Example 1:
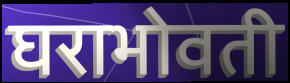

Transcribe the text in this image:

घराभोवती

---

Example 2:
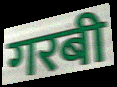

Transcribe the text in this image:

गरबी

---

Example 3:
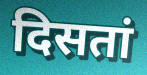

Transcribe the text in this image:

दिसतां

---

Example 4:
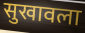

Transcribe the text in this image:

सुखावला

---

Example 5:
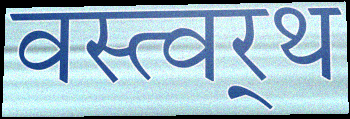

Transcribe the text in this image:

वस्त्वर्थ